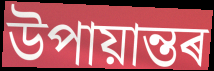
উপায়ান্তৰ